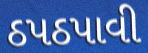
ઠપઠપાવી